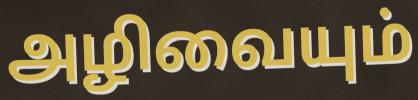
அழிவையும்